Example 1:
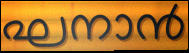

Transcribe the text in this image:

ഘനാൻ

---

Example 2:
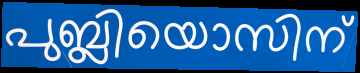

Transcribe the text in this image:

പുബ്ലിയൊസിന്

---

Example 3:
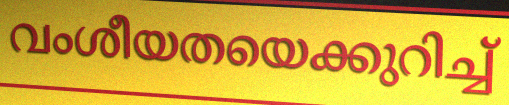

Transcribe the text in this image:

വംശീയതയെക്കുറിച്ച്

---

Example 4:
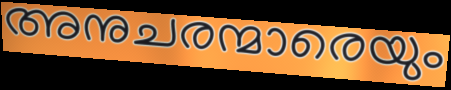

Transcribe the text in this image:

അനുചരന്മാരെയും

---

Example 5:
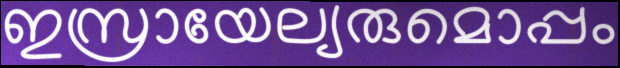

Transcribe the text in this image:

ഇസ്രായേല്യരുമൊപ്പം